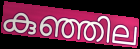
കുഞ്ഞില